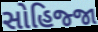
સોહિજ્જા